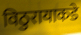
विठुरायाकडे